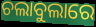
ଚଲାବୁଲାରେ